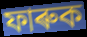
ফাৰুক